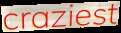
craziest